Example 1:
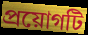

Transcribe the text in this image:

প্রয়োগটি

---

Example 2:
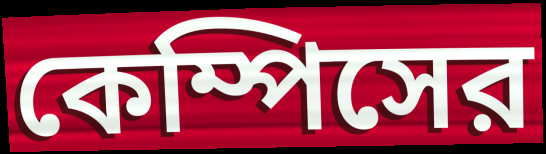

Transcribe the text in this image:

কেম্পিসের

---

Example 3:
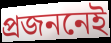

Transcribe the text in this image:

প্রজননেই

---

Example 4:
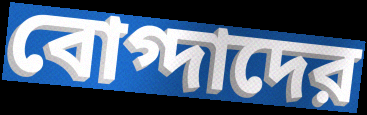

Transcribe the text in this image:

বোগ্দাদের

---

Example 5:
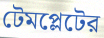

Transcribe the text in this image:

টেমপ্লেটের